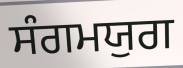
ਸੰਗਮਯੁਗ